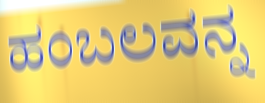
ಹಂಬಲವನ್ನ